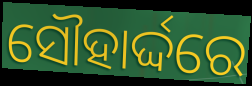
ସୌହାର୍ଦ୍ଦରେ